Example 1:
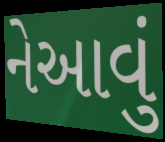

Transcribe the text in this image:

નેઆવું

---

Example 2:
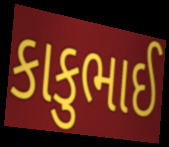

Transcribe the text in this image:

કાકુભાઈ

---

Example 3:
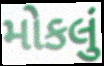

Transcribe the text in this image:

મોકલું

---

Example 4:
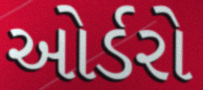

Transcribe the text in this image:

ઓર્ડરો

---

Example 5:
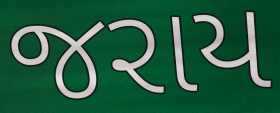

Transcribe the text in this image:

જરાય